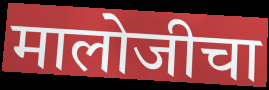
मालोजीचा